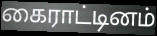
கைராட்டினம்